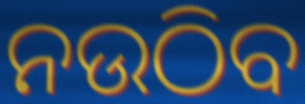
ନଉଠିବ